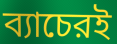
ব্যাচেরই